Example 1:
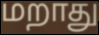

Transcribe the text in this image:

மறாது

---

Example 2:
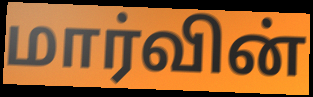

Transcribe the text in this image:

மார்வின்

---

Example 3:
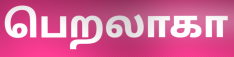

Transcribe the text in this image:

பெறலாகா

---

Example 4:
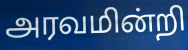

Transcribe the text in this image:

அரவமின்றி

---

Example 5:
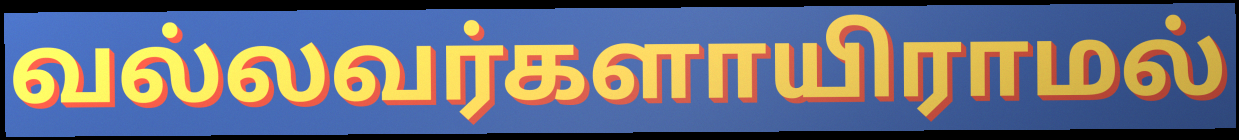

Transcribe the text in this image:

வல்லவர்களாயிராமல்